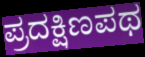
ಪ್ರದಕ್ಷಿಣಪಥ